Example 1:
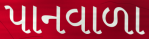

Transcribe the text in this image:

પાનવાળા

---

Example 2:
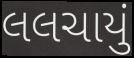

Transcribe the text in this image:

લલચાયું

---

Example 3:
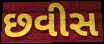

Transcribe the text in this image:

છવીસ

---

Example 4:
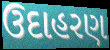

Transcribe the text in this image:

ઉદાહરણ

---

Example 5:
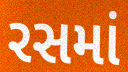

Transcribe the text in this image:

રસમાં